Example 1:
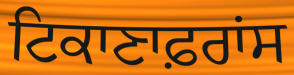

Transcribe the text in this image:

ਟਿਕਾਣਾਫ਼ਰਾਂਸ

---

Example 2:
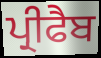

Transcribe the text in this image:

ਪ੍ਰੀਫੈਬ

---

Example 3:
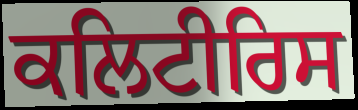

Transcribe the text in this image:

ਕਲਿਟੀਰਿਸ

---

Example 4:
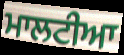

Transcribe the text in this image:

ਮਾਲਟੀਆ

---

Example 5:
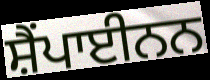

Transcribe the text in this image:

ਸ਼ੈਂਪਾਈਨਨ